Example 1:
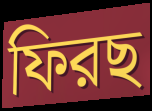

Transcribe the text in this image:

ফিরছ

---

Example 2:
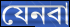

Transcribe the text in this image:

যেনবা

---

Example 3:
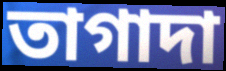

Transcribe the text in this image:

তাগাদা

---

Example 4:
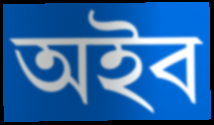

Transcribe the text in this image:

অইব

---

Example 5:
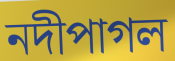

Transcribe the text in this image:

নদীপাগল